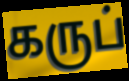
கருப்